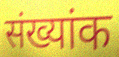
संख्यांक